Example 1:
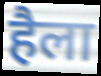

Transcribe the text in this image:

हैला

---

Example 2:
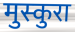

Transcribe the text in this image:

मुस्कुरा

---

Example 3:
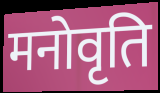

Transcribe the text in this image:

मनोवृति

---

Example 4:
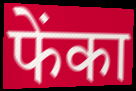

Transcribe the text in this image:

फेंका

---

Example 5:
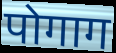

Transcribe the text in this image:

पोगाग